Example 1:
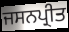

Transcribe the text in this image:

ਜਸਨਪ੍ਰੀਤ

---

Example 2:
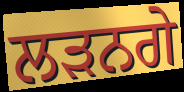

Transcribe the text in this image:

ਲੜਨਗੇ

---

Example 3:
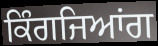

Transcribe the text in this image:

ਕਿੰਗਜਿਆਂਗ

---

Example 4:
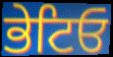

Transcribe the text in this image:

ਭੇਟਿਓ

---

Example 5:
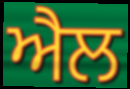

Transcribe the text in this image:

ਐਲ